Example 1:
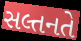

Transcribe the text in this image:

સલ્તનતે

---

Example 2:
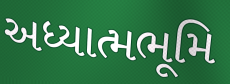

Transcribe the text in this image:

અધ્યાત્મભૂમિ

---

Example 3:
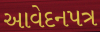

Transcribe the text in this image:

આવેદનપત્ર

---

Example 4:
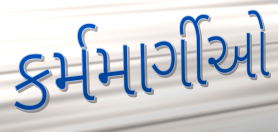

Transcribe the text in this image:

કર્મમાર્ગીઓ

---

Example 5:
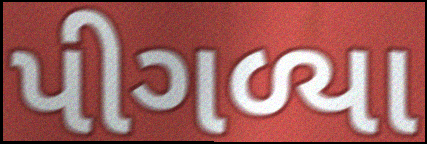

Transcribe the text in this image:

પીગળ્યા